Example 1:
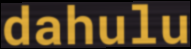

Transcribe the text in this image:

dahulu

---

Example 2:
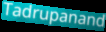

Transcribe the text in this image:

Tadrupanand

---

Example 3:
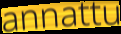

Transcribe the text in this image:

annattu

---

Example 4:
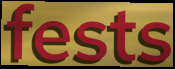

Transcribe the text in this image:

fests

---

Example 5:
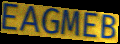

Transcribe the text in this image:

EAGMEB